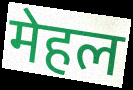
मेहल